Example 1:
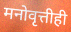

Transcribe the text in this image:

मनोवृत्तीही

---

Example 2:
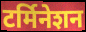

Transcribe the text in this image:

टर्मिनेशन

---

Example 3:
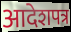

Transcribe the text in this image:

आदेशपत्र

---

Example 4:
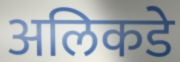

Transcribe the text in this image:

अलिकडे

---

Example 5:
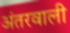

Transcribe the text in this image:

अंतरवाली